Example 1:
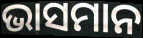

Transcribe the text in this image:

ଭାସମାନ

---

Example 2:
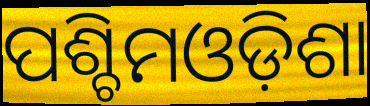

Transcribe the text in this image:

ପଶ୍ଚିମଓଡ଼ିଶା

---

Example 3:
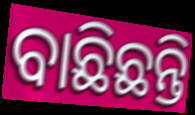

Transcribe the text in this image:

ବାଛିଛନ୍ତି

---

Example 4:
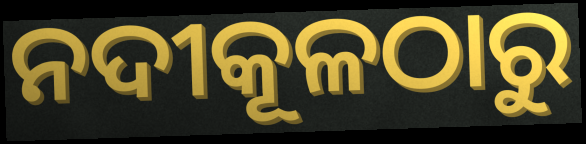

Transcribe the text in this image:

ନଦୀକୂଳଠାରୁ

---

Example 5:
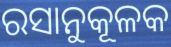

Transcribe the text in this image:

ରସାନୁକୂଳକ